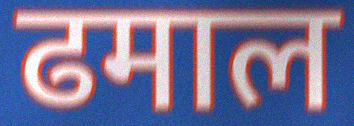
ढमाल